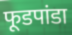
फूडपांडा